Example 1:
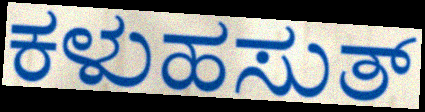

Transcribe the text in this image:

ಕಳುಹಸುತ್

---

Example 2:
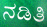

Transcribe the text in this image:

ನಡಿತಿ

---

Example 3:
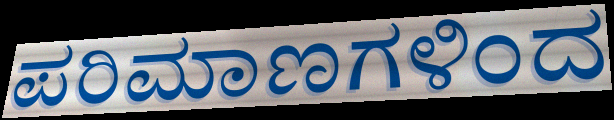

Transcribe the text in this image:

ಪರಿಮಾಣಗಳಿಂದ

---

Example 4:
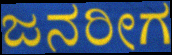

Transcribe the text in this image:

ಜನರೀಗ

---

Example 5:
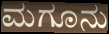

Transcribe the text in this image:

ಮಗೂನು